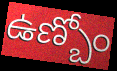
ఉణ్బోం